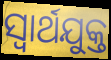
ସ୍ୱାର୍ଥଯୁକ୍ତ